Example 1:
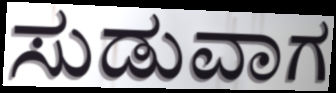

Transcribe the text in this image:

ಸುಡುವಾಗ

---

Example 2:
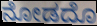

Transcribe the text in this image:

ನೋಡದೊ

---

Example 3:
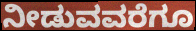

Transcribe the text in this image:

ನೀಡುವವರೆಗೂ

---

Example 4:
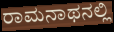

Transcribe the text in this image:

ರಾಮನಾಥನಲ್ಲಿ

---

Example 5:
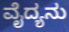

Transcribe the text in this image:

ವೈದ್ಯನು